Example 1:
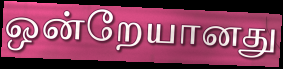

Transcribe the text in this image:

ஒன்றேயானது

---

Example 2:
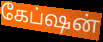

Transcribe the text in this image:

கேப்ஷன்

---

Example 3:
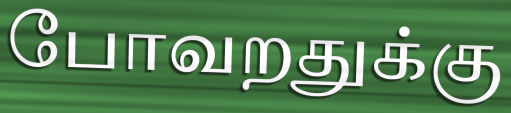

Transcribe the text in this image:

போவறதுக்கு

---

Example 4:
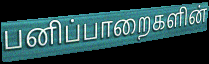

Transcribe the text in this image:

பனிப்பாறைகளின்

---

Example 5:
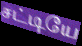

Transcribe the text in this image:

சட்டியே